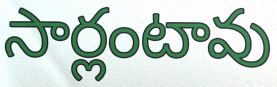
సార్లంటావు